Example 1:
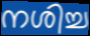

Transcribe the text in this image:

നശിച്ച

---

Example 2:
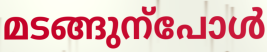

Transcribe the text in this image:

മടങ്ങുന്പോൾ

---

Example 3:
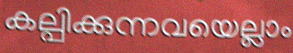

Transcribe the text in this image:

കല്പിക്കുന്നവയെല്ലാം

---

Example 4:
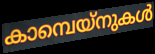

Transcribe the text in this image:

കാമ്പെയ്നുകൾ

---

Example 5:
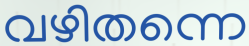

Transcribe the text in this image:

വഴിതന്നെ